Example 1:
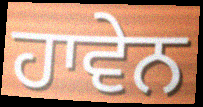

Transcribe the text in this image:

ਹਾਵੇਨ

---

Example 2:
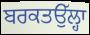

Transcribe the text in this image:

ਬਰਕਤਉੱਲ੍ਹਾ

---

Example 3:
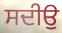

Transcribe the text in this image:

ਸਦੀਉ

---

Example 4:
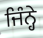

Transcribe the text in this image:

ਜਿੰਨ੍ਹੇ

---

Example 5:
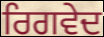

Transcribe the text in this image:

ਰਿਗਵੇਦ